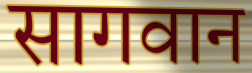
सागवान